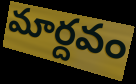
మార్దవం